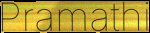
Pramathi